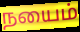
நயைம்